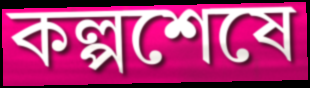
কল্পশেষে